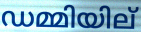
ഡമ്മിയില്